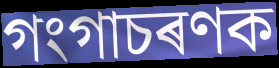
গংগাচৰণক